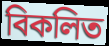
বিকলিত